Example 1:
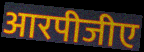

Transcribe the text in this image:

आरपीजीए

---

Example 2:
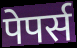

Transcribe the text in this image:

पेपर्स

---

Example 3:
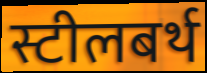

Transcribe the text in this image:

स्टीलबर्थ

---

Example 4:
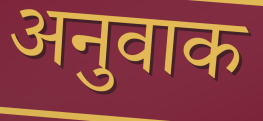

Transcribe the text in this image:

अनुवाक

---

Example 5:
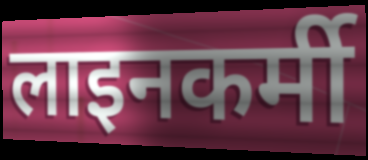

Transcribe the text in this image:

लाइनकर्मी